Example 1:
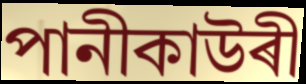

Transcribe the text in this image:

পানীকাউৰী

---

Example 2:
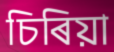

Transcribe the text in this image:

চিৰিয়া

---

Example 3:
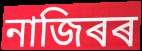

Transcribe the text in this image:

নাজিৰৰ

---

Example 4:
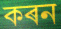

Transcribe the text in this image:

কৰন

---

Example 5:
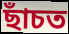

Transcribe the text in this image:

ছাঁচত